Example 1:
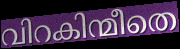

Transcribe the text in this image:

വിറകിന്മീതെ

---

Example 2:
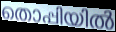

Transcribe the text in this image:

തൊപ്പിയിൽ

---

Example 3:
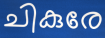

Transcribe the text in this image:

ചികുരേ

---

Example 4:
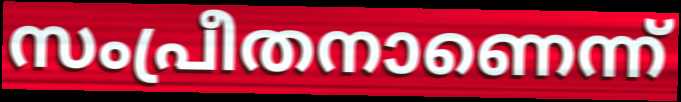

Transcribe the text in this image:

സംപ്രീതനാണെന്ന്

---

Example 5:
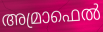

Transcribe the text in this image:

അമ്രാഫെൽ